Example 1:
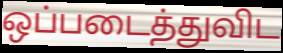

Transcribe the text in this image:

ஒப்படைத்துவிட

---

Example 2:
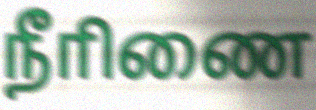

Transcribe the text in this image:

நீரிணை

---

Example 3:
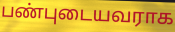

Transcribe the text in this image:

பண்புடையவராக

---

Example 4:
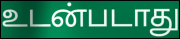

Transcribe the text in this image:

உடன்படாது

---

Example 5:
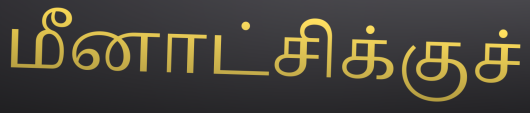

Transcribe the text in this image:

மீனாட்சிக்குச்